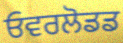
ਓਵਰਲੋਡਡ